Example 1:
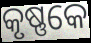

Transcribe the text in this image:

କୃଷ୍ଣକେ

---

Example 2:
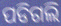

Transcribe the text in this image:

ପଡିଗଲି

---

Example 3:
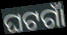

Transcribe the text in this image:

ଘଟଗାଁ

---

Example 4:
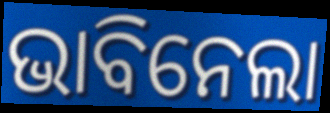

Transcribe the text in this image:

ଭାବିନେଲା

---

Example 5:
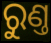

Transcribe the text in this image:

ରୁଣ୍ତ